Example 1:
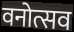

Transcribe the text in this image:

वनोत्सव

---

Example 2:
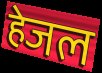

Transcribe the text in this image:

हेजल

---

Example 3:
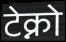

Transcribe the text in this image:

टेक्नो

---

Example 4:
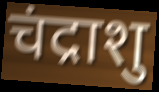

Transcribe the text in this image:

चंद्राशु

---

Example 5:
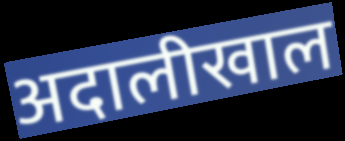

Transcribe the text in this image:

अदालीखाल